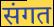
संगत